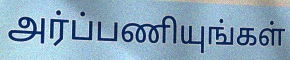
அர்ப்பணியுங்கள்